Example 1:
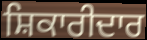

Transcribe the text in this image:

ਸ਼ਿਕਾਰੀਦਾਰ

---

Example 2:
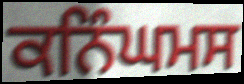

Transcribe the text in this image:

ਕਨਿੰਘਮਸ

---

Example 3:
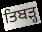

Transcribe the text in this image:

ਤਿਬੜ੍ਹ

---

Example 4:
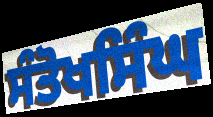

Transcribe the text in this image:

ਸੰਤੋਖਸਿੰਘ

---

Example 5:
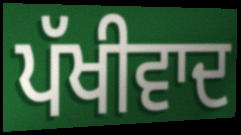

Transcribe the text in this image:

ਪੱਖੀਵਾਦ